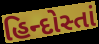
હિન્દોસ્તાં